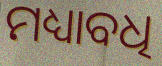
ମଧ୍ୟାବଧି